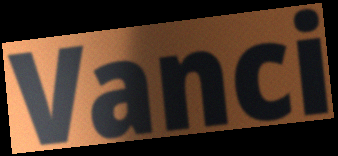
Vanci